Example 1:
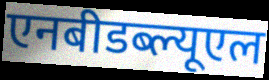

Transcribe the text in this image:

एनबीडब्ल्यूएल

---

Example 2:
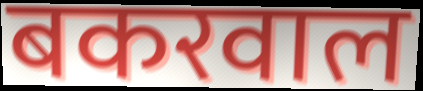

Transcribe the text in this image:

बकरवाल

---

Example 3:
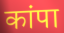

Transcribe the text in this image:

कांपा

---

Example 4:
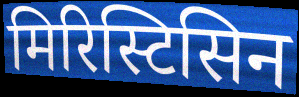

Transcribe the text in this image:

मिरिस्टिसिन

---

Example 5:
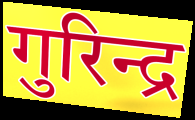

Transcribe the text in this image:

गुरिन्द्र